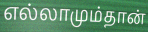
எல்லாமும்தான்